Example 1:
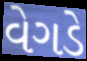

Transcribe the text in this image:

વેગડે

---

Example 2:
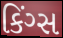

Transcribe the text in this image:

કિંગ્સ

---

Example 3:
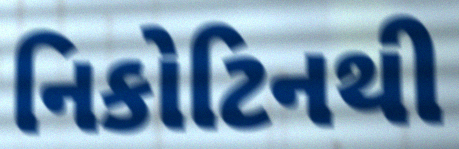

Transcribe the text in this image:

નિકોટિનથી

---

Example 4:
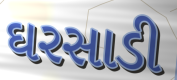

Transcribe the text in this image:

ઘરસાડી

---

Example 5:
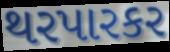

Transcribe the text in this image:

થરપારકર